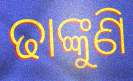
ଢାଙ୍କୁଣି